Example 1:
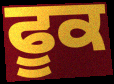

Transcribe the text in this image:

ਫੂਕ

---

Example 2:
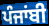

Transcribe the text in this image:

ਪੰਜਾਂਬੀ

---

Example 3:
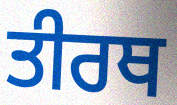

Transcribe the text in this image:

ਤੀਰਥ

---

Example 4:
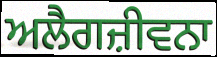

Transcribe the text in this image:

ਅਲੈਗਜ਼ੀਵਨਾ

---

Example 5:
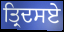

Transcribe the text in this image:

ਤ੍ਰਿਦਸਏ